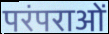
परंपराओं